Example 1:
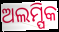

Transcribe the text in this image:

ଅଲମ୍ପିକ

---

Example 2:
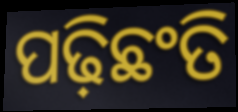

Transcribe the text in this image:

ପଢ଼ିଛଂତି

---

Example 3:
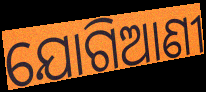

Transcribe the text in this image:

ଯୋଗିଆଣୀ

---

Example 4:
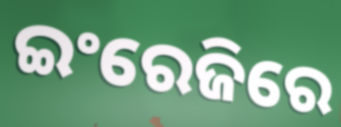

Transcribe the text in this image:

ଇଂରେଜିରେ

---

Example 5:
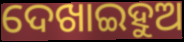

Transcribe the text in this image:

ଦେଖାଇହୁଅ